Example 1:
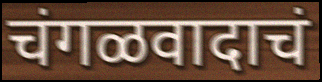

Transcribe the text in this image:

चंगळवादाचं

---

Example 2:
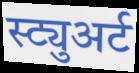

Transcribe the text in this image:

स्ट्युअर्ट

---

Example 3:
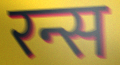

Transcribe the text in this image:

रन्स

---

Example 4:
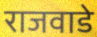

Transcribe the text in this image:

राजवाडे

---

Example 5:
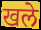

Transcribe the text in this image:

खले